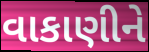
વાકાણીને